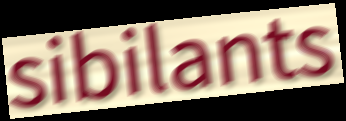
sibilants